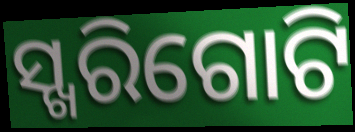
ସ୍ଖରିଗୋଟି